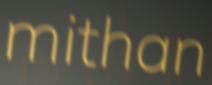
mithan